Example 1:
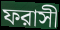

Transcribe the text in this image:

ফরাসী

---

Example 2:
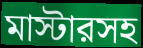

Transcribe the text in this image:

মাস্টারসহ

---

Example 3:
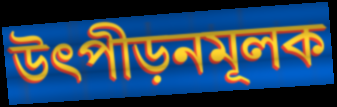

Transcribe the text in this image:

উৎপীড়নমূলক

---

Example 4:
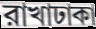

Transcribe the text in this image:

রাখাঢাকা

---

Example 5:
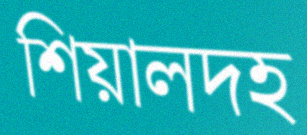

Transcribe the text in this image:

শিয়ালদহ